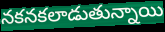
నకనకలాడుతున్నాయి